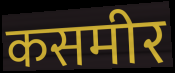
कसमीर